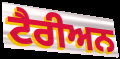
ਟੈਰੀਅਨ